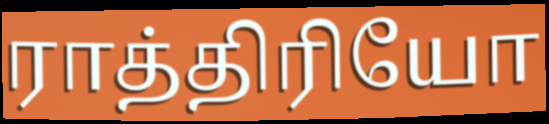
ராத்திரியோ